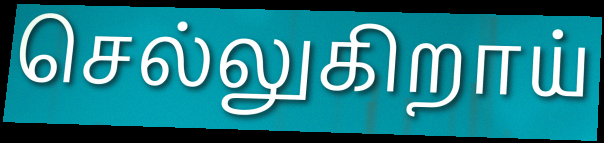
செல்லுகிறாய்